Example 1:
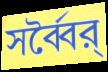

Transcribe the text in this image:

সর্ব্বৈর্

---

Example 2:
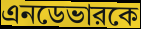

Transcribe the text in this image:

এনডেভারকে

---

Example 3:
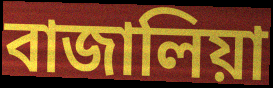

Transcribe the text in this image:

বাজালিয়া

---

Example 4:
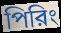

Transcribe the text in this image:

পিরিং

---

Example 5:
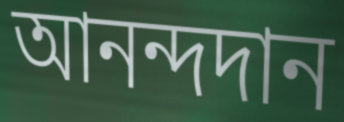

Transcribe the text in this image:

আনন্দদান